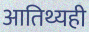
आतिथ्यही